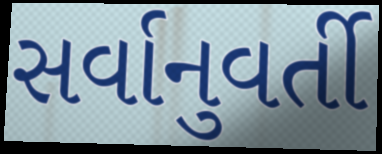
સર્વાનુવર્તી